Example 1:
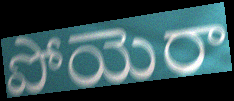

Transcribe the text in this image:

పోయెరా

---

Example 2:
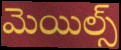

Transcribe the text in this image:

మెయిల్స్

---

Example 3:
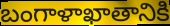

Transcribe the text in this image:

బంగాళాఖాతానికి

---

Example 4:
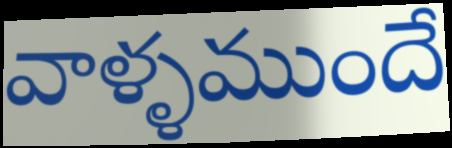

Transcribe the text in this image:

వాళ్ళముందే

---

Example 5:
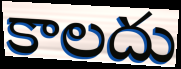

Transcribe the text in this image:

కాలదు